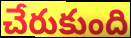
చేరుకుంది